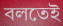
বলতেই